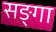
सङ्गा